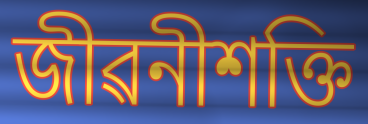
জীৱনীশক্তি